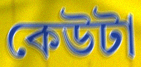
কেউটা